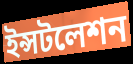
ইন্সটলেশন